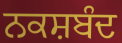
ਨਕਸ਼ਬੰਦ